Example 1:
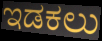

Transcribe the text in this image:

ಇಡಕಲು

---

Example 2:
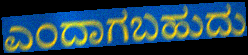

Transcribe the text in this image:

ಎಂದಾಗಬಹುದು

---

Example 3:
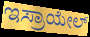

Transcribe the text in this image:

ಇಸ್ರಾಯೇಲ್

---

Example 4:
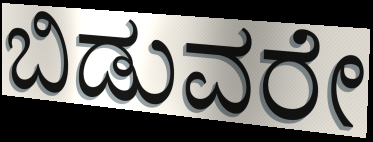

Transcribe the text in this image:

ಬಿಡುವರೇ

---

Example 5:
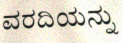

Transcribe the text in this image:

ವರದಿಯನ್ನು